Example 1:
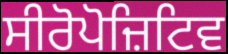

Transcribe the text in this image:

ਸੀਰੋਪੋਜ਼ਿਟਿਵ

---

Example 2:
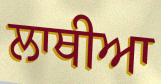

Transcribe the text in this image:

ਲਾਥੀਆ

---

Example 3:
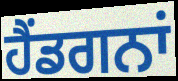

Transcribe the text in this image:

ਹੈਂਡਗਨਾਂ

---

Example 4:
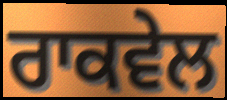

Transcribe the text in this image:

ਰਾਕਵੇਲ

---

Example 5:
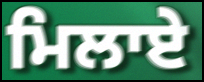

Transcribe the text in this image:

ਮਿਲਾਏ